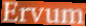
Ervum